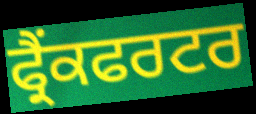
ਫ੍ਰੈਂਕਫਰਟਰ